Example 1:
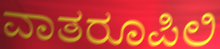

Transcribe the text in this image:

ವಾತರೂಪಿಲಿ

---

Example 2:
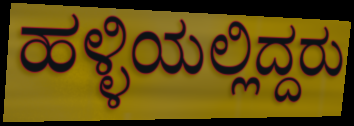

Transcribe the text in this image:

ಹಳ್ಳಿಯಲ್ಲಿದ್ದರು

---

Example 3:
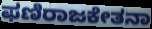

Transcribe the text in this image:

ಫಣಿರಾಜಕೇತನಾ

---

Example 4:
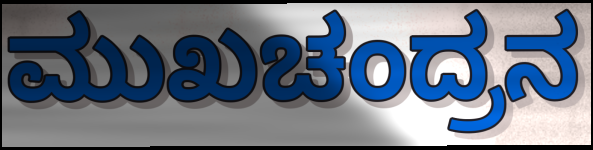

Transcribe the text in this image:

ಮುಖಚಂದ್ರನ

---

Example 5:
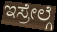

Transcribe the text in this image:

ಇಸ್ರೇಲ್ಗೆ